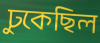
ঢুকেছিল